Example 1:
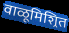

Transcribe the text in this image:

वाळूमिश्रित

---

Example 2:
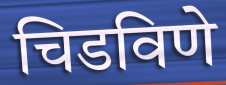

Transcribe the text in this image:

चिडविणे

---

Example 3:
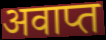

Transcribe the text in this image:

अवाप्त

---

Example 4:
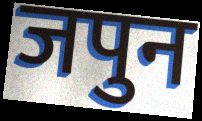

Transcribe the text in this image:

जपुन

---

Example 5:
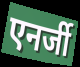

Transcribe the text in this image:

एनर्जी